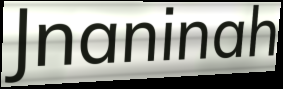
Jnaninah